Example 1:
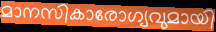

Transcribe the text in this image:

മാനസികാരോഗ്യവുമായി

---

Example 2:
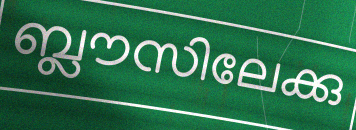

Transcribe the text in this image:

ബ്ലൗസിലേക്കു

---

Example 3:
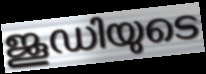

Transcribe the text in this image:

ജൂഡിയുടെ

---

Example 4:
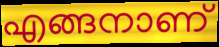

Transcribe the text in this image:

എങ്ങനാണ്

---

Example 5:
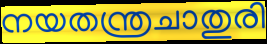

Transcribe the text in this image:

നയതന്ത്രചാതുരി